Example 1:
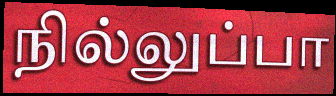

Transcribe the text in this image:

நில்லுப்பா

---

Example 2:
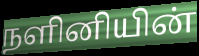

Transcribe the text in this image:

நளினியின்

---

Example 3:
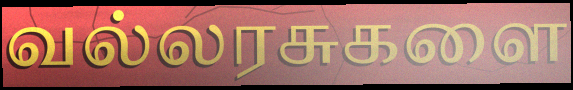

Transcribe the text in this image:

வல்லரசுகளை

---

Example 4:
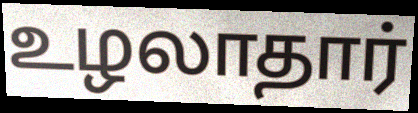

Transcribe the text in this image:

உழலாதார்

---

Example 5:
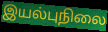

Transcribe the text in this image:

இயல்புநிலை